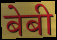
बेबी